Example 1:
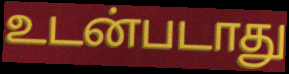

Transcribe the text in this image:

உடன்படாது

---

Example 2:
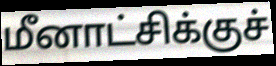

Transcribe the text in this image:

மீனாட்சிக்குச்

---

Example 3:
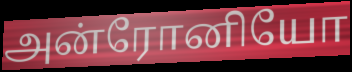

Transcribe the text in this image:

அன்ரோனியோ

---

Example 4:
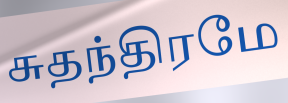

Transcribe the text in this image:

சுதந்திரமே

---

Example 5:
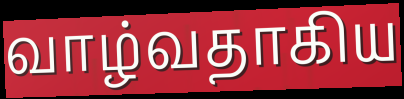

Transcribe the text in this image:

வாழ்வதாகிய